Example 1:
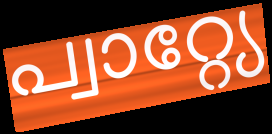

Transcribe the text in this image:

പ്വാറ്റ്യേ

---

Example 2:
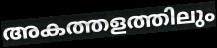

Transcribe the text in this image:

അകത്തളത്തിലും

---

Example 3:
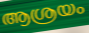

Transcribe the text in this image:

ആശ്രയം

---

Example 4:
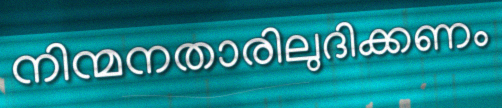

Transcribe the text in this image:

നിന്മനതാരിലുദിക്കണം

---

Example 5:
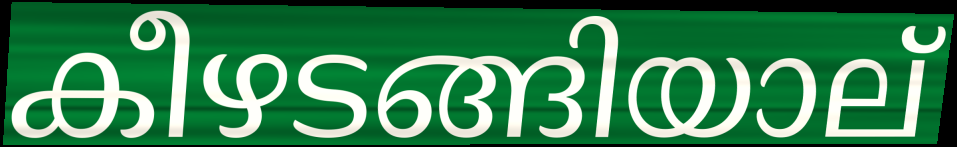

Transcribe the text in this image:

കീഴടങ്ങിയാല്